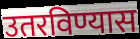
उतरविण्यास